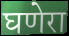
घणेरा